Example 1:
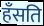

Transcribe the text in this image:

हँसति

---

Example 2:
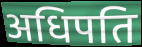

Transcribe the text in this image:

अधिपति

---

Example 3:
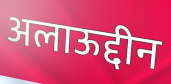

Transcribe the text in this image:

अलाऊद्दीन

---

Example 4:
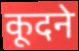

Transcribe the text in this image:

कूदने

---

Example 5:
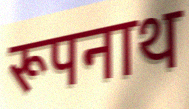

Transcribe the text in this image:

रूपनाथ